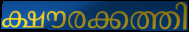
ക്ഷൗരക്കത്തി